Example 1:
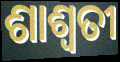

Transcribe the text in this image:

ଶାଶ୍ଵତୀ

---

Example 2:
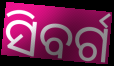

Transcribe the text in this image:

ସିବର୍ଗ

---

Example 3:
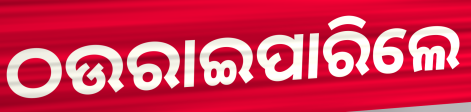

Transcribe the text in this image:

ଠଉରାଇପାରିଲେ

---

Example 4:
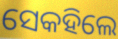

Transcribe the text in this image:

ସେକହିଲେ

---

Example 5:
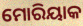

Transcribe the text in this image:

ମୋରିୟାକ